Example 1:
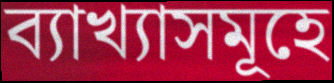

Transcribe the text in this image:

ব্যাখ্যাসমূহে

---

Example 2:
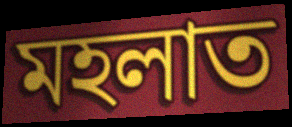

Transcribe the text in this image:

মহলাত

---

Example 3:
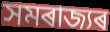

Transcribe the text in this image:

সমৰাজ্যৰ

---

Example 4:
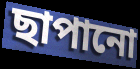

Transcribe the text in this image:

ছাপানো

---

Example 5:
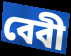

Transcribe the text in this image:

বেবী